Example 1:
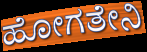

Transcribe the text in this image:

ಹೋಗತೇನಿ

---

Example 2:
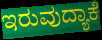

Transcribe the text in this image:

ಇರುವುದ್ಯಾಕೆ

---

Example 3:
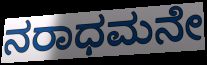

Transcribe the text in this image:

ನರಾಧಮನೇ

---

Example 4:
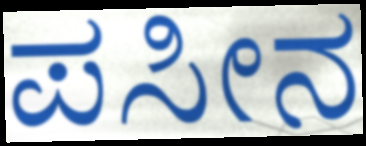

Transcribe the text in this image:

ಪಸೀನ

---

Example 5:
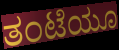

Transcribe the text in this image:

ತಂಟೆಯೂ